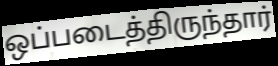
ஒப்படைத்திருந்தார்